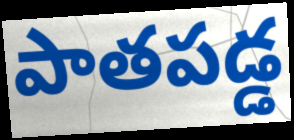
పాతపడ్డ